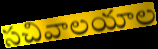
సచివాలయాల